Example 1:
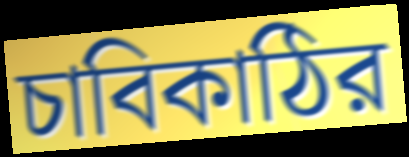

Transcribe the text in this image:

চাবিকাঠির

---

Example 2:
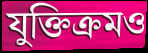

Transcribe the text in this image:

যুক্তিক্রমও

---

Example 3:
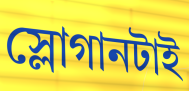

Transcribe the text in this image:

স্লোগানটাই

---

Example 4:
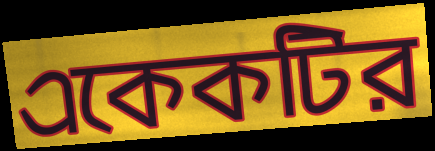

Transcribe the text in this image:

একেকটির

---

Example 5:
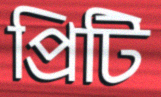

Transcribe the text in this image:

প্রিটি